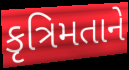
કૃત્રિમતાને